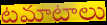
టమాటాలు